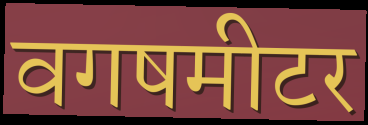
वगषमीटर